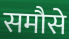
समौसे